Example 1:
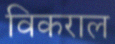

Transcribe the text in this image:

विकराल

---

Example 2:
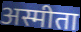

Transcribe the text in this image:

अस्मीता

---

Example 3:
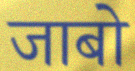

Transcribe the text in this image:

जाबो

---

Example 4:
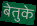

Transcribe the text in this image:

बेतुके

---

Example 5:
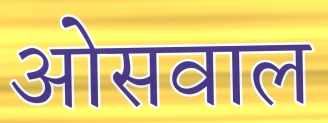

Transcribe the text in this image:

ओसवाल